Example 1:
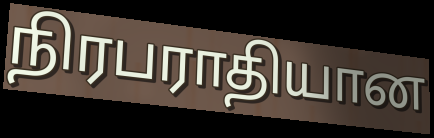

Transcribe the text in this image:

நிரபராதியான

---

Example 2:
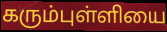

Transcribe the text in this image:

கரும்புள்ளியை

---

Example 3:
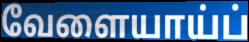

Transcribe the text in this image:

வேளையாய்ப்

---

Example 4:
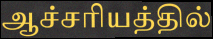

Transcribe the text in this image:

ஆச்சரியத்தில்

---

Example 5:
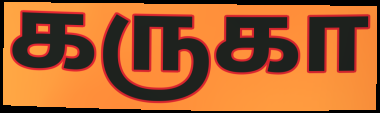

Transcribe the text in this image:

கருகா